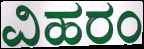
ವಿಹರಂ